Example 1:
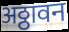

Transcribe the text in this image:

अठ्ठावन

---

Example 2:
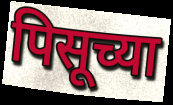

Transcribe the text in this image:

पिसूच्या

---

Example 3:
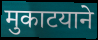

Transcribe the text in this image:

मुकाटयाने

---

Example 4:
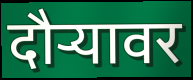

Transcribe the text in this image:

दौऱ्यावर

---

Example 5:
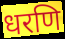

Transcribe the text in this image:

धरणि